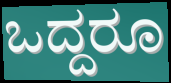
ಒದ್ದರೂ